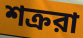
শক্ররা